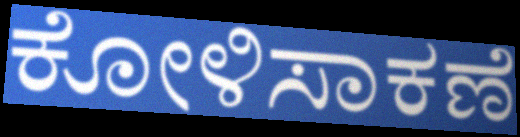
ಕೋಳಿಸಾಕಣೆ